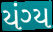
યંગ્ય